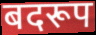
बदरूप